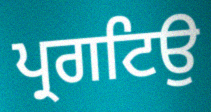
ਪ੍ਰਗਟਿਉ